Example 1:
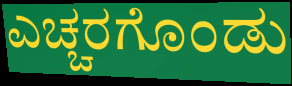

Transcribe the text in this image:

ಎಚ್ಚರಗೊಂಡು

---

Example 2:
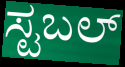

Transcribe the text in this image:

ಸ್ಟಬಲ್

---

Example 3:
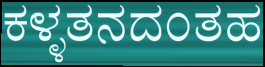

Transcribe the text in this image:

ಕಳ್ಳತನದಂತಹ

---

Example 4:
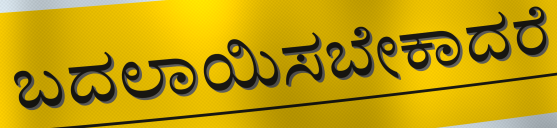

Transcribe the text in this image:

ಬದಲಾಯಿಸಬೇಕಾದರೆ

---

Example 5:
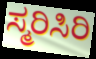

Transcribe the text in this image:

ಸ್ಮರಿಸಿರಿ